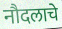
नौदलाचे